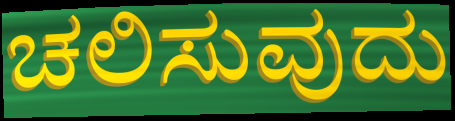
ಚಲಿಸುವುದು